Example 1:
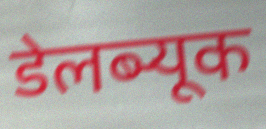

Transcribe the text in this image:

डेलब्ऱ्यूक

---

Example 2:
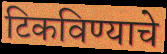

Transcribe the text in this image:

टिकविण्याचे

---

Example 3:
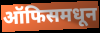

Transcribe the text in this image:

ऑफिसमधून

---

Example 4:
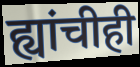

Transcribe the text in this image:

ह्यांचीही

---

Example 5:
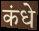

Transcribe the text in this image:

कंधे